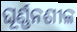
ଘୂର୍ଣ୍ଣନଶୀଳ